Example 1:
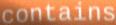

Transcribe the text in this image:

contains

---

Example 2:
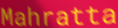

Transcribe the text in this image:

Mahratta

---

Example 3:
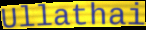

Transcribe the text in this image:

Ullathai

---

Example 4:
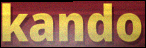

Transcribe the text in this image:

kando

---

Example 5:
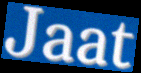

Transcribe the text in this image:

Jaat